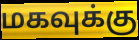
மகவுக்கு